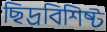
ছিদ্রবিশিষ্ট